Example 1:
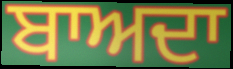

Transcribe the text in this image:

ਬਾਅਦਾ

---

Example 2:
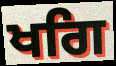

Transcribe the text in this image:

ਖਗਿ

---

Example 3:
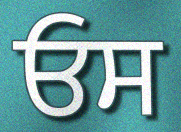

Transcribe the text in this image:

ਓਸ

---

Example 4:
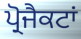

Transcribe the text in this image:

ਪ੍ਰੋਜੈਕਟਾਂ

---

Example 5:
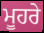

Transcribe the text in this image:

ਮੂਹਰੇ